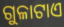
ଗୁଳାଟାଏ